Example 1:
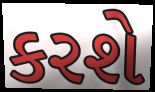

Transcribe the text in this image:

કરશે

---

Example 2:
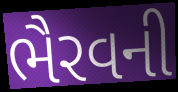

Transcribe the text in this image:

ભૈરવની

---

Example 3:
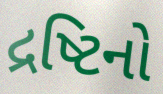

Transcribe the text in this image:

દ્રષ્ટિનો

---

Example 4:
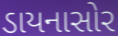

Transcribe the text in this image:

ડાયનાસોર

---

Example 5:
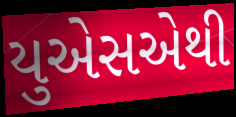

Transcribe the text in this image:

યુએસએથી